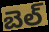
బెల్